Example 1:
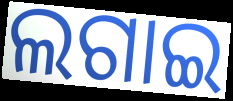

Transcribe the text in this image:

ଲଗାଇ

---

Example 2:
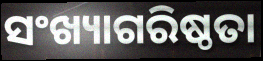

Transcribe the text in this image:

ସଂଖ୍ୟାଗରିଷ୍ଠତା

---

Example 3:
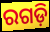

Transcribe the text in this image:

ରଗଡ଼ି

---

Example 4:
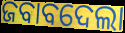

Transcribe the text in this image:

ଜବାବଦେଲା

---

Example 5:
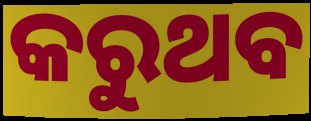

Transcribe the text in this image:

କରୁଥବ